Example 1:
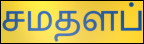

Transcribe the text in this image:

சமதளப்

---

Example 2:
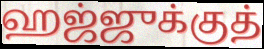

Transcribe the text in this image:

ஹஜ்ஜுக்குத்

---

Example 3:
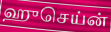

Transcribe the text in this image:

ஹுசெய்ன்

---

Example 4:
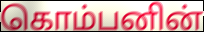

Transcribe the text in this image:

கொம்பனின்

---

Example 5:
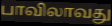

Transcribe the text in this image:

பாவிலாவது